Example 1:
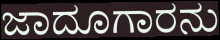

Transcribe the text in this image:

ಜಾದೂಗಾರನು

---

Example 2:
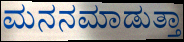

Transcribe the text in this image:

ಮನನಮಾಡುತ್ತಾ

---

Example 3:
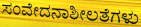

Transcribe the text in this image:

ಸಂವೇದನಾಶೀಲತೆಗಳು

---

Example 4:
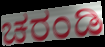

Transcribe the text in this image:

ಚರಂಡಿ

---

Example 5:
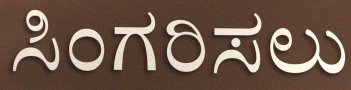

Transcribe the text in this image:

ಸಿಂಗರಿಸಲು